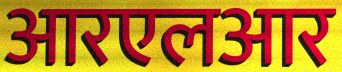
आरएलआर